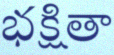
భక్షితా